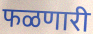
फळणारी